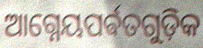
ଆଗ୍ନେୟପର୍ଵତଗୁଡ଼ିକ